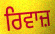
ਰਿਵਾਜ਼